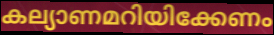
കല്യാണമറിയിക്കേണം